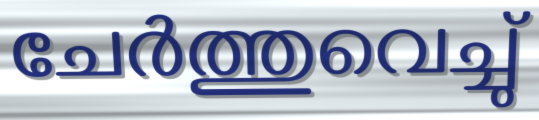
ചേർത്തുവെച്ചു്